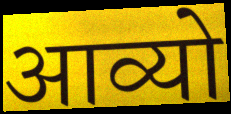
आव्यो